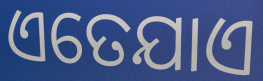
ଏତେଯାଏ